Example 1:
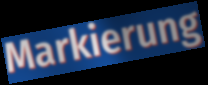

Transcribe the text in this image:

Markierung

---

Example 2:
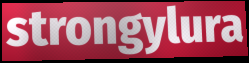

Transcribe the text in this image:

strongylura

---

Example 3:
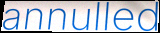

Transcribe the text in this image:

annulled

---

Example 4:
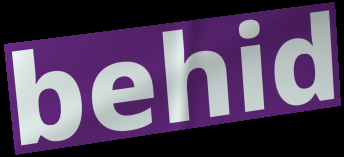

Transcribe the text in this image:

behid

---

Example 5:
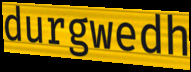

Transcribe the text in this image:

durgwedh